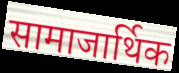
सामाजार्थिक